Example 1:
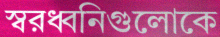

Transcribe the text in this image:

স্বরধ্বনিগুলোকে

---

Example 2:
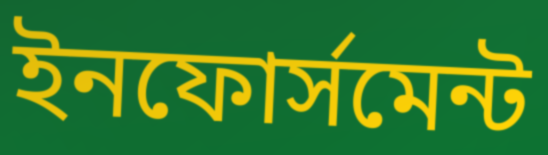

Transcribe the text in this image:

ইনফোর্সমেন্ট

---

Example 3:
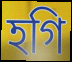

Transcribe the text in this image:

হগি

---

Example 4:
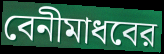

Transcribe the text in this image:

বেনীমাধবের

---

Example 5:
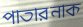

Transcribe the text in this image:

পাতারনাক